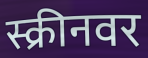
स्क्रीनवर